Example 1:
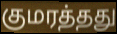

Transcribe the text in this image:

குமரத்தது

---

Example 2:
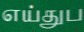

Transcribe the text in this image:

எய்துப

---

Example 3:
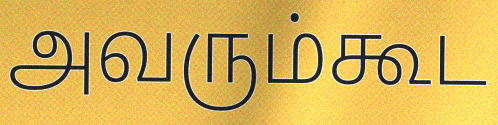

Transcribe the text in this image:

அவரும்கூட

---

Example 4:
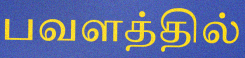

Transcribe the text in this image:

பவளத்தில்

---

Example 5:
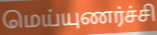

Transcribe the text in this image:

மெய்யுணர்ச்சி